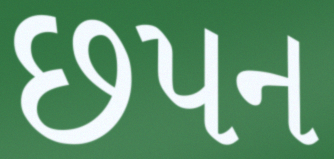
છપન